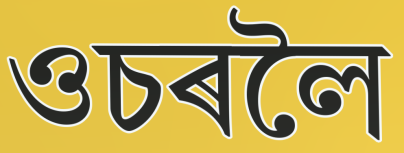
ওচৰলৈ